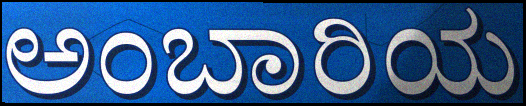
ಅಂಬಾರಿಯ